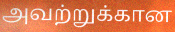
அவற்றுக்கான